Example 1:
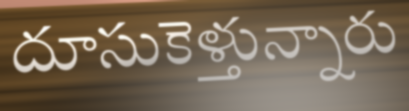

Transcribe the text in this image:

దూసుకెళ్తున్నారు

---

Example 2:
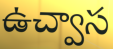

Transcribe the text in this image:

ఉచ్వాస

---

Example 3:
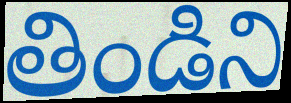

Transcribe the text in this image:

తిండిని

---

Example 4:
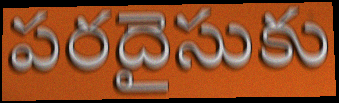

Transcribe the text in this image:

పరదైసుకు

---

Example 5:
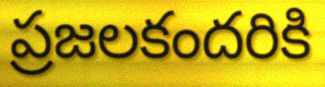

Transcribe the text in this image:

ప్రజలకందరికి